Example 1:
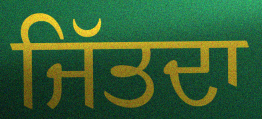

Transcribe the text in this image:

ਜਿੱਤਦਾ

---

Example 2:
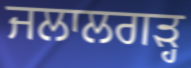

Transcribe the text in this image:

ਜਲਾਲਗੜ੍ਹ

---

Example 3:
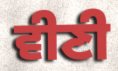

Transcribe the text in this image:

ਵੀਣੀ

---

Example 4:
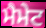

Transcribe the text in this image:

ਮੈਮੇਟ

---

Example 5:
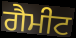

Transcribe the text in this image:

ਗੈਮੀਟ